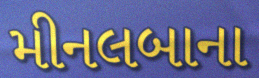
મીનલબાના